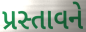
પ્રસ્તાવને